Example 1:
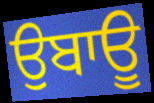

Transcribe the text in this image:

ਉਬਾਊ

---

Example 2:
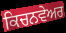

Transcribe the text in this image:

ਕਿਚਨਵੇਅਰ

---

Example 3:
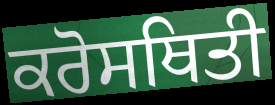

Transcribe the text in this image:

ਕਰੋਸਥਿਤੀ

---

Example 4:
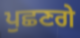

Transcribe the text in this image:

ਪੁਛਣਗੇ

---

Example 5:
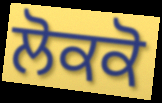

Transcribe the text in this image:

ਲੋਕਕੋ